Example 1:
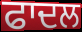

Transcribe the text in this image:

ਫਾਦਲ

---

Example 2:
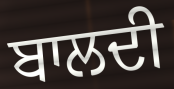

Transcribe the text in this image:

ਬਾਲਦੀ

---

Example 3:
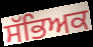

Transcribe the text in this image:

ਸੱਭਿਅਕ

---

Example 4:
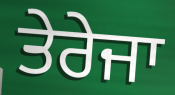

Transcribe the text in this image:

ਤੇਰੇਜਾ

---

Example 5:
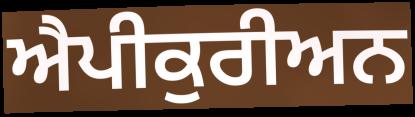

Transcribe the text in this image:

ਐਪੀਕੁਰੀਅਨ